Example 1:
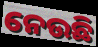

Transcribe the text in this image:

ନେଉଛି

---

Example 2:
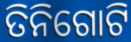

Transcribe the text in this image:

ତିନିଗୋଟି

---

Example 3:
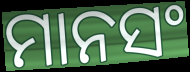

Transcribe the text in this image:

ମାନସଂ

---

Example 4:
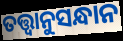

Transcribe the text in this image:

ତତ୍ତ୍ବାନୁସନ୍ଧାନ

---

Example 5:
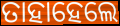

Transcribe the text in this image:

ତାହାହେଲେ